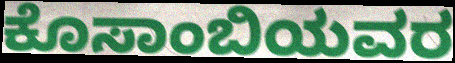
ಕೊಸಾಂಬಿಯವರ